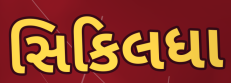
સિકિલધા